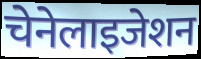
चेनेलाइजेशन